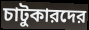
চাটুকারদের